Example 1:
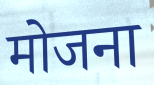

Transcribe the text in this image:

मोजना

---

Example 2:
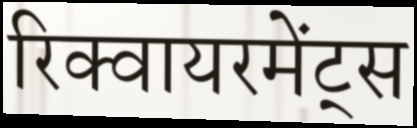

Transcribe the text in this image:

रिक्वायरमेंट्स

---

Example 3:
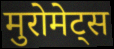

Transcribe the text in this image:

मुरोमेट्स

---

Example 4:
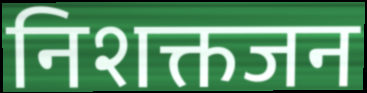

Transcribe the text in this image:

निशक्तजन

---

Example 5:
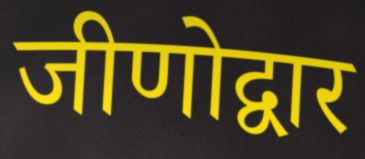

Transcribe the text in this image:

जीणोद्वार